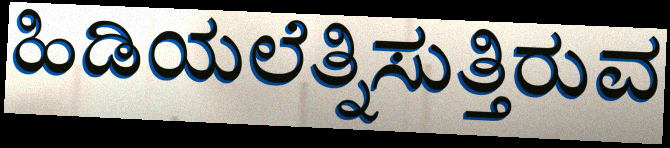
ಹಿಡಿಯಲೆತ್ನಿಸುತ್ತಿರುವ